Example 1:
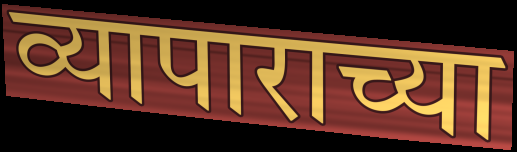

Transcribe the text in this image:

व्यापाराच्या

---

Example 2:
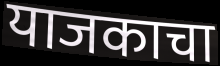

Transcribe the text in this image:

याजकाचा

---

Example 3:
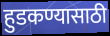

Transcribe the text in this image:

हुडकण्यासाठी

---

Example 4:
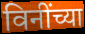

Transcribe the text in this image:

विनींच्या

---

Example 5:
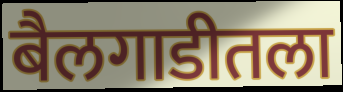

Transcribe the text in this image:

बैलगाडीतला